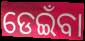
ଡେଇଁବା